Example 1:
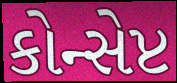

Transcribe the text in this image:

કોન્સેપ્ટ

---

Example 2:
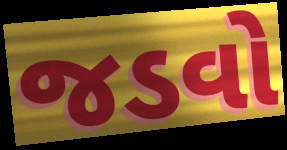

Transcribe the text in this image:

જડવો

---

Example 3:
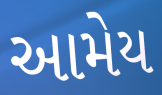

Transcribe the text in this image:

આમેય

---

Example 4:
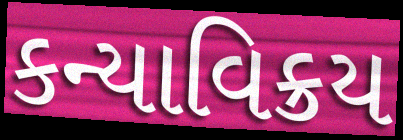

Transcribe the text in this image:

કન્યાવિક્રય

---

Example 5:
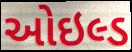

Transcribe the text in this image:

ઓઇલ્ડ